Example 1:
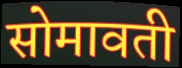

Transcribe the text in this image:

सोमावती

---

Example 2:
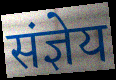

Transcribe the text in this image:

संज्ञेय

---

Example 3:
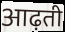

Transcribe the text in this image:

आढ़ती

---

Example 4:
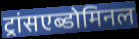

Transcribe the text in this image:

ट्रांसएब्डोमिनल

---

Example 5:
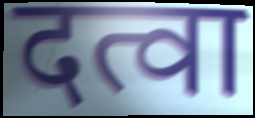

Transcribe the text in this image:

दत्वा